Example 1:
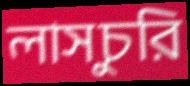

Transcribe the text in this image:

লাসচুরি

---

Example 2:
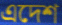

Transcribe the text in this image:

এদেশ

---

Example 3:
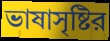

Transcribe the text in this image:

ভাষাসৃষ্টির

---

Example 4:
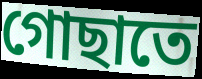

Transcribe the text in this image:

গোছাতে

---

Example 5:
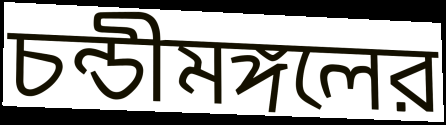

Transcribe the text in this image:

চন্ডীমঙ্গলের